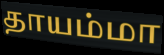
தாயம்மா